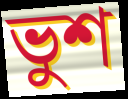
ভুশ